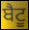
ਬੈਟੂ